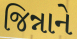
જિન્નાને